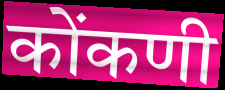
कोंकणी